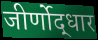
जीर्णोद्धार